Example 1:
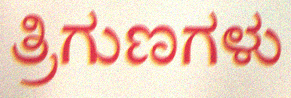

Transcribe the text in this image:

ತ್ರಿಗುಣಗಳು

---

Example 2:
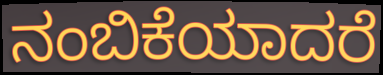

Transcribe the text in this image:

ನಂಬಿಕೆಯಾದರೆ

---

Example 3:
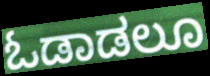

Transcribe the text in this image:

ಓಡಾಡಲೂ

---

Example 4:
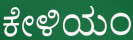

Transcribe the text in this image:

ಕೇಳಿಯಂ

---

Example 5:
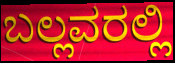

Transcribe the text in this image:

ಬಲ್ಲವರಲ್ಲಿ